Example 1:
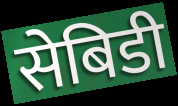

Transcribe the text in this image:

सेबिडी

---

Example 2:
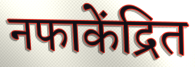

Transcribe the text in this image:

नफाकेंद्रित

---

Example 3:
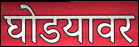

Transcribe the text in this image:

घोडयावर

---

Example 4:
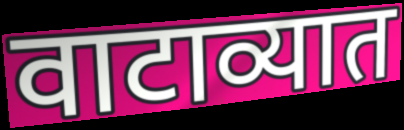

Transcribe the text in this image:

वाटाव्यात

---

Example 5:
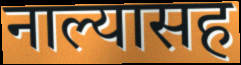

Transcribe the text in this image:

नाल्यासह